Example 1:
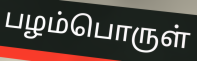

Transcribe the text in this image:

பழம்பொருள்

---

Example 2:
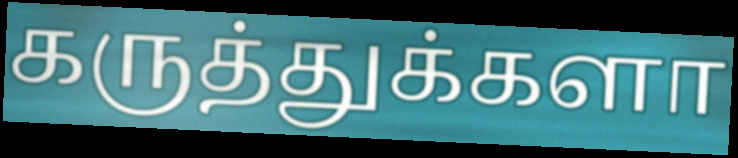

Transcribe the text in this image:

கருத்துக்களா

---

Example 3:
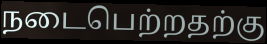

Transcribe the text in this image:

நடைபெற்றதற்கு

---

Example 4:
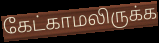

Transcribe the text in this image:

கேட்காமலிருக்க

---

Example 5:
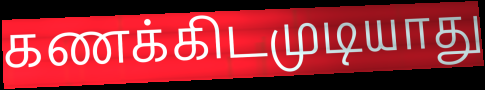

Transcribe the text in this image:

கணக்கிடமுடியாது